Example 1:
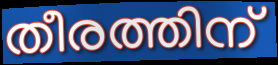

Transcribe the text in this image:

തീരത്തിന്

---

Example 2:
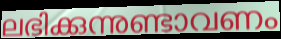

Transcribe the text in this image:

ലഭിക്കുന്നുണ്ടാവണം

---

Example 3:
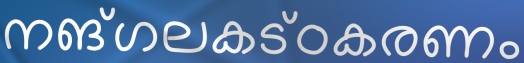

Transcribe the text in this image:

നങ്ഗലകട്ഠകരണം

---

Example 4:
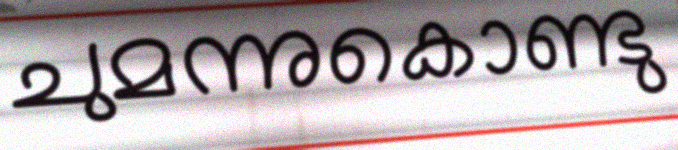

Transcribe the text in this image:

ചുമന്നുകൊണ്ടു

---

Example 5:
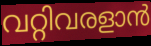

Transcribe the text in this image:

വറ്റിവരളാൻ